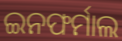
ଇନଫର୍ମାଲ